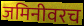
जमिनीवरच